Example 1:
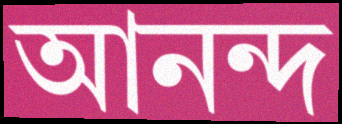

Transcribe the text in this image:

আনন্দ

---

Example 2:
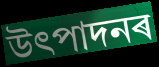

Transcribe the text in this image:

উৎপাদনৰ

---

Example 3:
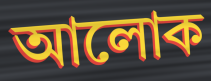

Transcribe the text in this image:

আলোক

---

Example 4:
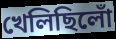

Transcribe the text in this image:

খেলিছিলোঁ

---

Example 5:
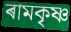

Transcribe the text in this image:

ৰামকৃষ্ণ